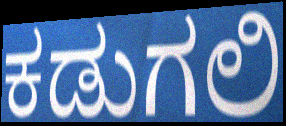
ಕಡುಗಲಿ